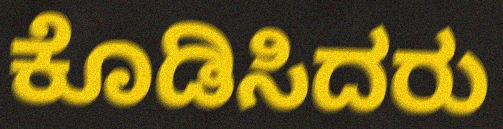
ಕೊಡಿಸಿದರು